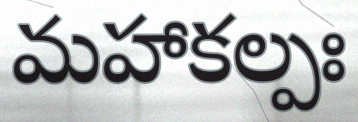
మహాకల్పః